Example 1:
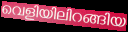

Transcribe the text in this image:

വെളിയിലിറങ്ങിയ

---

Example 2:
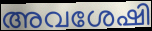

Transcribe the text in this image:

അവശേഷി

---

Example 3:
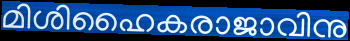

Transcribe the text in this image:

മിശിഹൈകരാജാവിനു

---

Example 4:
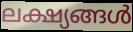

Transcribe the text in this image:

ലക്ഷ്യങ്ങൾ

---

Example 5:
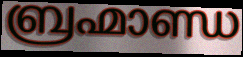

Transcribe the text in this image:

ബ്രഹ്മാണ്ഡ